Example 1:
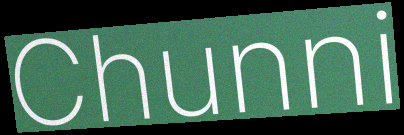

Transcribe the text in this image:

Chunni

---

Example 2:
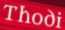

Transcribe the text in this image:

Thodi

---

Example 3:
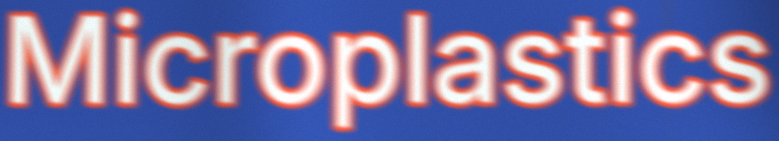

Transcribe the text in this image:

Microplastics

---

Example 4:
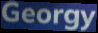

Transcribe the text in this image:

Georgy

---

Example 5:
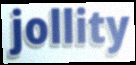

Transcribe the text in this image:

jollity